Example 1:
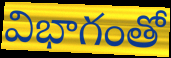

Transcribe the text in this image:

విభాగంతో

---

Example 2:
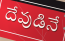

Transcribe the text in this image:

దేవుడినే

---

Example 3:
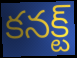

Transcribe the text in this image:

కనక్ట్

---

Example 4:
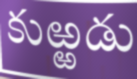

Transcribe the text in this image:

కుఱ్ఱడు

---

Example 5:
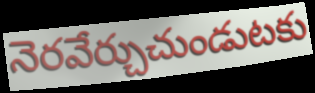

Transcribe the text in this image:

నెరవేర్చుచుండుటకు